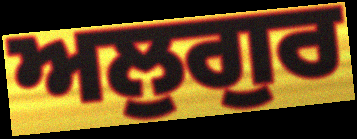
ਅਲੁਗੁਰ